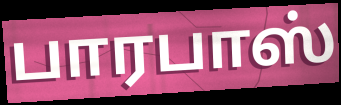
பாரபாஸ்